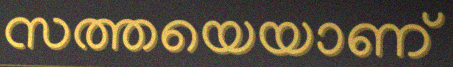
സത്തയെയാണ്